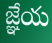
జ్ఞేయ